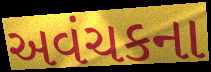
અવંચકના